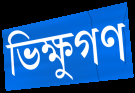
ভিক্ষুগণ